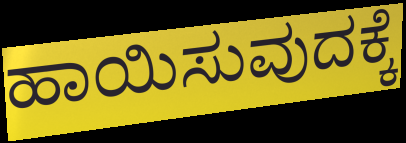
ಹಾಯಿಸುವುದಕ್ಕೆ